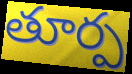
తూర్ప